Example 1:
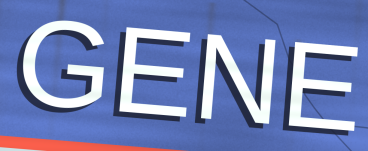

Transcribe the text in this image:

GENE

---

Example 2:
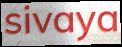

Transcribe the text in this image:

sivaya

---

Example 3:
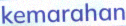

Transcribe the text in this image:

kemarahan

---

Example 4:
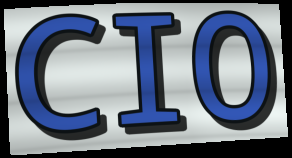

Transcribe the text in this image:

CIO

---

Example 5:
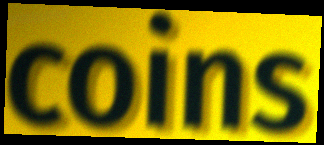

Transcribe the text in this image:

coins